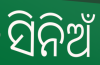
ସିନିଅଁ